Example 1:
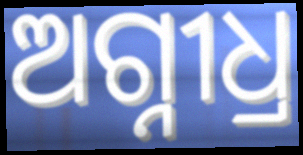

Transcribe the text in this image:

ଅଗ୍ନୀଧ୍ର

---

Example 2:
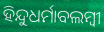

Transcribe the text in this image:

ହିନ୍ଦୁଧର୍ମାବଲମ୍ବୀ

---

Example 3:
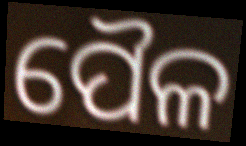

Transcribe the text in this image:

ପୈଳ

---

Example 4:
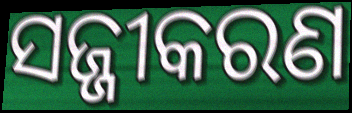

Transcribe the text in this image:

ସଜ୍ଜୀକରଣ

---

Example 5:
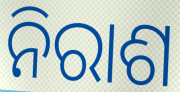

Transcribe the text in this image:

ନିରାଶ